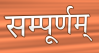
सम्पूर्णम्